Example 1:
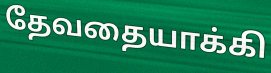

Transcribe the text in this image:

தேவதையாக்கி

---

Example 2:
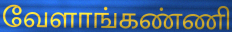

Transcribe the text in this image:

வேளாங்கண்ணி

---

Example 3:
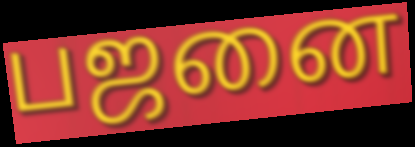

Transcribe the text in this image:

பஜனை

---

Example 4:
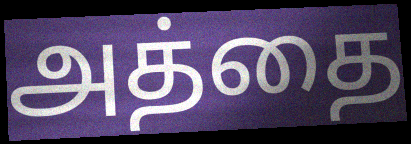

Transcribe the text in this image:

அத்தை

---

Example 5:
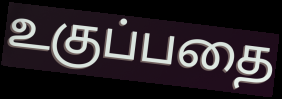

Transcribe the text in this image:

உகுப்பதை